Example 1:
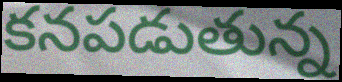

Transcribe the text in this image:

కనపడుతున్న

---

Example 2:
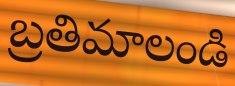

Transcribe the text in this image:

బ్రతిమాలండి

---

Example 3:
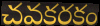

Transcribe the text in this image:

చవకరకం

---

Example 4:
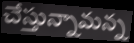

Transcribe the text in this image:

చేస్తున్నామన్న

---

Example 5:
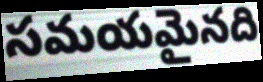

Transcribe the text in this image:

సమయమైనది